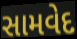
સામવેદ